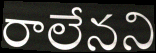
రాలేనని